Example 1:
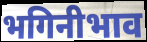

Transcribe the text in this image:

भगिनीभाव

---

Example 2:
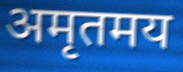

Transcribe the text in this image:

अमृतमय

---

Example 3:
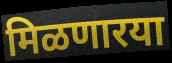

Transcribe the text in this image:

मिळणारया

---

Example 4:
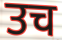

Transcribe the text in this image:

उच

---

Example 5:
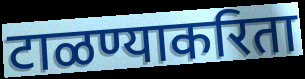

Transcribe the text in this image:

टाळण्याकरिता